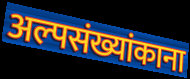
अल्पसंख्यांकाना